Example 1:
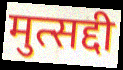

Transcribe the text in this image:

मुत्सद्दी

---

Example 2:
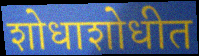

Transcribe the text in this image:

शोधाशोधीत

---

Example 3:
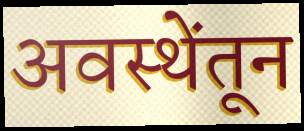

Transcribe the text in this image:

अवस्थेंतून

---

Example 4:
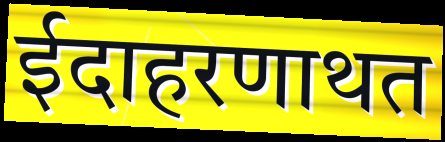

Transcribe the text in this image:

ईदाहरणाथत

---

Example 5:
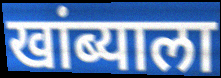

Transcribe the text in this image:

खांब्याला